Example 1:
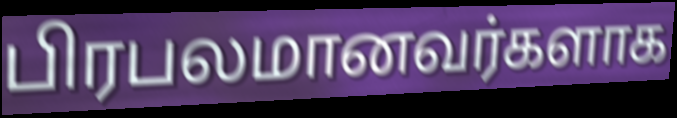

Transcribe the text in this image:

பிரபலமானவர்களாக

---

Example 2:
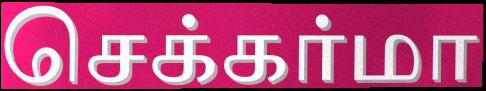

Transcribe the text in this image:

செக்கர்மா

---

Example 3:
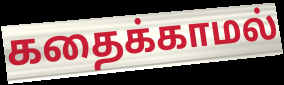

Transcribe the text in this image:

கதைக்காமல்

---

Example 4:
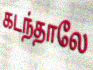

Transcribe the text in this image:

கடந்தாலே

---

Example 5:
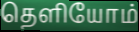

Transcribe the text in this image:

தெளியோம்